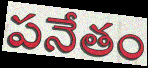
పనేతం